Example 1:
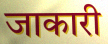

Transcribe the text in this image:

जाकारी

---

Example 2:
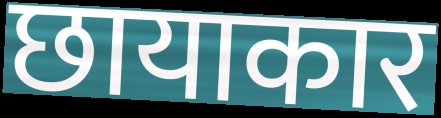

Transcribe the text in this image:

छायाकार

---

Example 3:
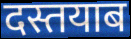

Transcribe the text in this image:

दस्तयाब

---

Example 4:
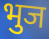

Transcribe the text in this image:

भुज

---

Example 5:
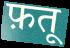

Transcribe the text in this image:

फ़तू